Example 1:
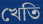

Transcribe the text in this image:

খেতি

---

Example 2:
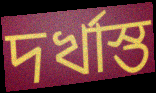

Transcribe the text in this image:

দৰ্খাস্ত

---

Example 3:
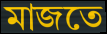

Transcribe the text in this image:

মাজতে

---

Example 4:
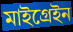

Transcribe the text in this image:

মাইগ্ৰেইন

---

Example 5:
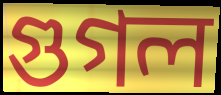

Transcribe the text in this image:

গুগল